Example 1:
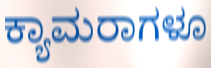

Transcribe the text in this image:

ಕ್ಯಾಮರಾಗಳೂ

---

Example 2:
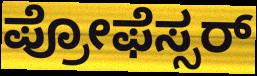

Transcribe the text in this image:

ಪ್ರೋಫೆಸ್ಸರ್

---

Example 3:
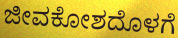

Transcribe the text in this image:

ಜೀವಕೋಶದೊಳಗೆ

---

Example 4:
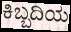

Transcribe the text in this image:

ಕಿಬ್ಬದಿಯ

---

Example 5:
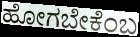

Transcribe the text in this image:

ಹೋಗಬೇಕೆಂಬ